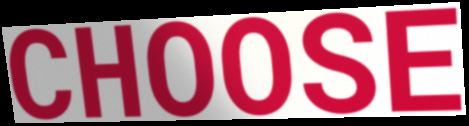
CHOOSE